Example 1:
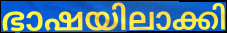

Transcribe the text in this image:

ഭാഷയിലാക്കി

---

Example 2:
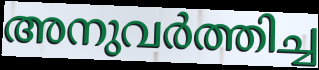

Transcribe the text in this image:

അനുവർത്തിച്ച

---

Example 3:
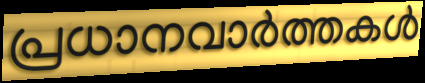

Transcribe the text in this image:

പ്രധാനവാർത്തകൾ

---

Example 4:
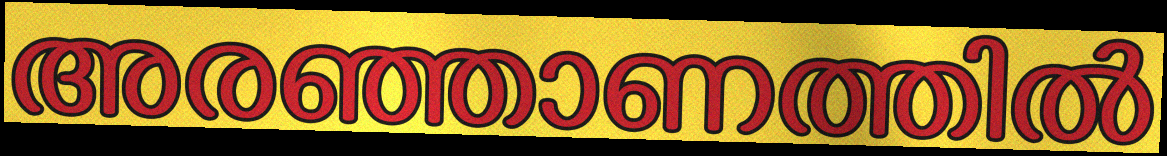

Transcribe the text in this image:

അരഞ്ഞാണത്തിൽ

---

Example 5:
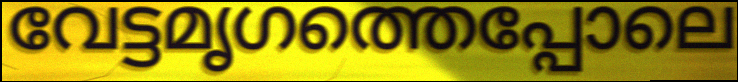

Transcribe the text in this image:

വേട്ടമൃഗത്തെപ്പോലെ